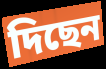
দিছেন